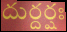
దుర్దర్షః